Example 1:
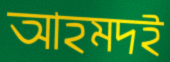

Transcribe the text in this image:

আহমদই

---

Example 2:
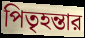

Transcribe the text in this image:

পিতৃহন্তার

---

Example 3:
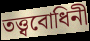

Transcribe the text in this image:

তত্ত্ববোধিনী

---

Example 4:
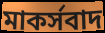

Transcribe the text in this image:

মাকর্সবাদ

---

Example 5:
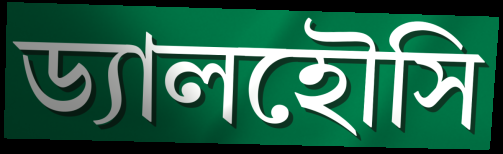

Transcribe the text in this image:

ড্যালহৌসি